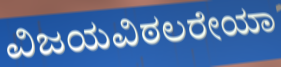
ವಿಜಯವಿಠಲರೇಯಾ